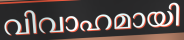
വിവാഹമായി